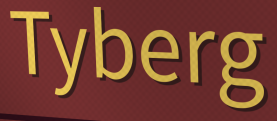
Tyberg